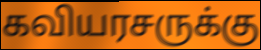
கவியரசருக்கு